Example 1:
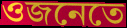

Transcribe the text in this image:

ওজনেতে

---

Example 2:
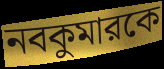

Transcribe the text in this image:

নবকুমারকে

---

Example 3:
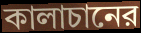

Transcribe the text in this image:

কালাচানের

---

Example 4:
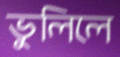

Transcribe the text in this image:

ভুলিলে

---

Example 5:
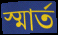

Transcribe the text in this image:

স্মার্ত